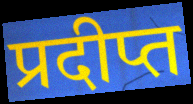
प्रदीप्त